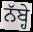
ਨੱਬ੍ਹੇ